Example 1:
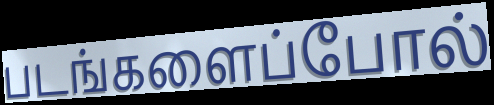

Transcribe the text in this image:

படங்களைப்போல்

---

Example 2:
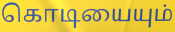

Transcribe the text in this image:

கொடியையும்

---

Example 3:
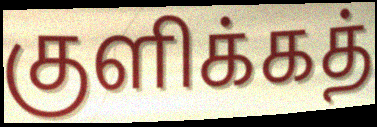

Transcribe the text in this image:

குளிக்கத்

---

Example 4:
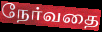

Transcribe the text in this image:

நேர்வதை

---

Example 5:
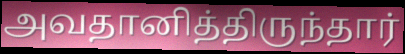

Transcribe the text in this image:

அவதானித்திருந்தார்